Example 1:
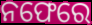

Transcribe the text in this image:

ନଫେରେ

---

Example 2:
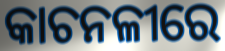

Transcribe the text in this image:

କାଚନଳୀରେ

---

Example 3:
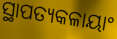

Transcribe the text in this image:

ସ୍ଥାପତ୍ୟକଳାୟାଂ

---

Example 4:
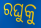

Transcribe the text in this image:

ରଘୁକୁ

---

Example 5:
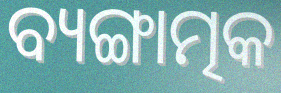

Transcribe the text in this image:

ବ୍ୟଙ୍ଗାତ୍ମକ